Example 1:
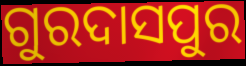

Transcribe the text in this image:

ଗୁରଦାସପୁର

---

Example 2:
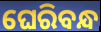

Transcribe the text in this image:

ଘେରିବନ୍ଧ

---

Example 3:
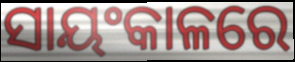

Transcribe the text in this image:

ସାୟଂକାଳରେ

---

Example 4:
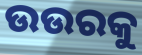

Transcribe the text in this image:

ଉଉରକୁ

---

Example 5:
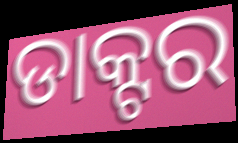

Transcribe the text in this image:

ଡାକ୍ଟର